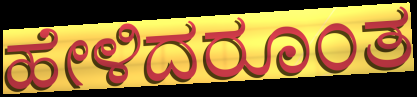
ಹೇಳಿದರೂಂತ